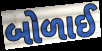
બોળાઈ